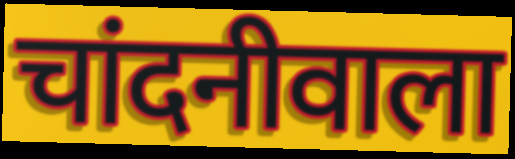
चांदनीवाला